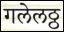
गलेलठ्ठ